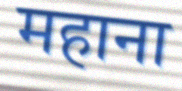
महाना